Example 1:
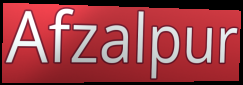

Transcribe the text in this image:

Afzalpur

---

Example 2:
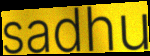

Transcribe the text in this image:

sadhu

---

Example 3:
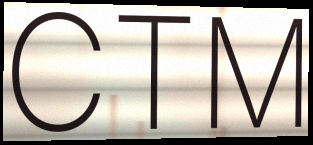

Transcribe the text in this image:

CTM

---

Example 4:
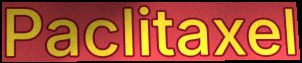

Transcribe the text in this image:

Paclitaxel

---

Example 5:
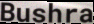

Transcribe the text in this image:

Bushra